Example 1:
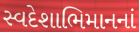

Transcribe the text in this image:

સ્વદેશાભિમાનનાં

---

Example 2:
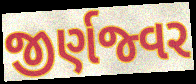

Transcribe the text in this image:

જીર્ણજ્વર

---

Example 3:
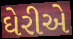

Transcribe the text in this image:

ઘેરીએ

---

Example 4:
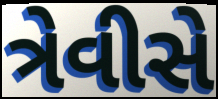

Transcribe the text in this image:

ત્રેવીસે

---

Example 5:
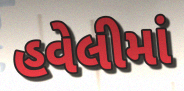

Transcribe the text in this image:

હવેલીમાં